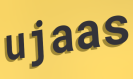
ujaas